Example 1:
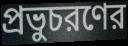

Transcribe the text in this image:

প্রভুচরণের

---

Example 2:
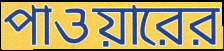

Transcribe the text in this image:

পাওয়ারের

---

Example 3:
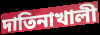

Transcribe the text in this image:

দাতিনাখালী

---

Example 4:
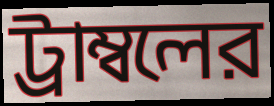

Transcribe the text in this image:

ট্রাম্বলের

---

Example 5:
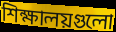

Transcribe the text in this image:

শিক্ষালয়গুলো